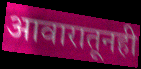
आवारातूनही